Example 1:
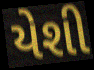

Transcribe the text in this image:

યેશી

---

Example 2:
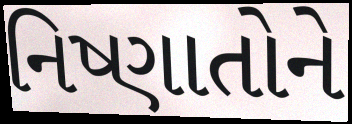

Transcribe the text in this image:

નિષ્ણાતોને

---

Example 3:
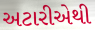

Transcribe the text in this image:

અટારીએથી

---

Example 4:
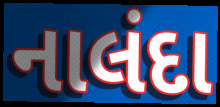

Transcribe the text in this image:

નાલંદા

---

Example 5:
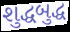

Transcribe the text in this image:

શુદ્ધબુદ્ધ